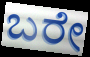
ಬರೇ